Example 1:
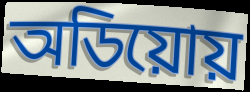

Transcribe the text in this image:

অডিয়োয়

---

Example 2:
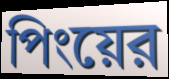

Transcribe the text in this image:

পিংয়ের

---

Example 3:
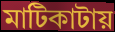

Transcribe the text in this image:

মাটিকাটায়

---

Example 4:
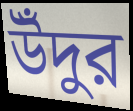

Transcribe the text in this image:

উঁদুর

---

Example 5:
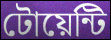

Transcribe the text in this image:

টোয়েন্টি